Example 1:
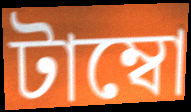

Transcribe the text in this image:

টাম্বো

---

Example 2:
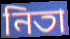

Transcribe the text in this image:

নিতা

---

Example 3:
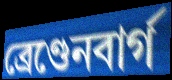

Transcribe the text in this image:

ব্ৰেণ্ডেনবাৰ্গ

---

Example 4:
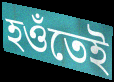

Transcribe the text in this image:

হওঁতেই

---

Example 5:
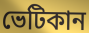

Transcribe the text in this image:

ভেটিকান